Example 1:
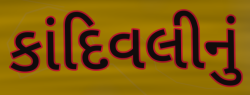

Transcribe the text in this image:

કાંદિવલીનું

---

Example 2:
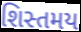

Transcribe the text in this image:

શિસ્તમય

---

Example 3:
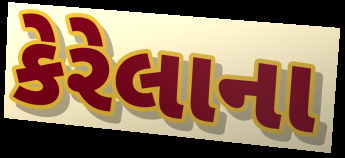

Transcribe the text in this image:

કેરેલાના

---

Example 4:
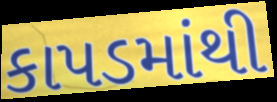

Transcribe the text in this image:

કાપડમાંથી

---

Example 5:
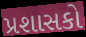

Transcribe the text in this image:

પ્રશાસકો